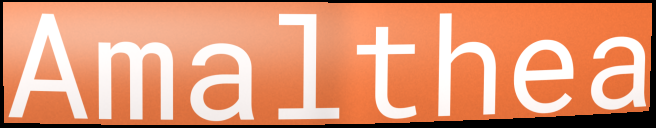
Amalthea